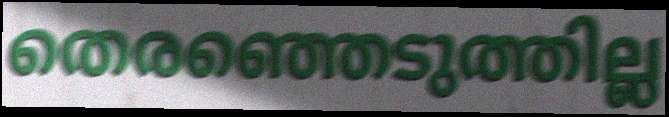
തെരഞ്ഞെടുത്തില്ല